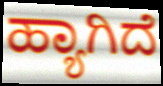
ಹ್ಯಾಗಿದೆ